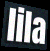
lila